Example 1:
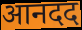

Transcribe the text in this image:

आनदद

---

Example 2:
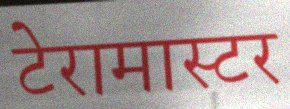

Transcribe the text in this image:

टेरामास्टर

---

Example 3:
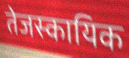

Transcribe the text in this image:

तेजस्कायिक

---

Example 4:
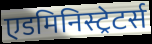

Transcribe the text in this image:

एडमिनिस्ट्रेटर्स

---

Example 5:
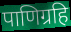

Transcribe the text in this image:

पाणिग्रहि